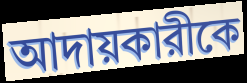
আদায়কারীকে